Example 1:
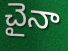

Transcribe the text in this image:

చైనా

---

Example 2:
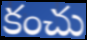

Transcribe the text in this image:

కంచు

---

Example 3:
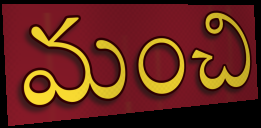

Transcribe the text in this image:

మంచి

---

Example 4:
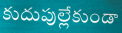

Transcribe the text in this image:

కుదుపుల్లేకుండా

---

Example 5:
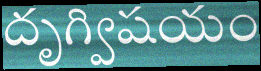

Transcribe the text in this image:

దృగ్విషయం